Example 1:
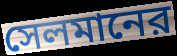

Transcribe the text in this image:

সেলমানের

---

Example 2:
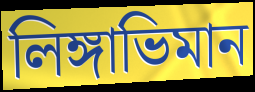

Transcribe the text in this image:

লিঙ্গাভিমান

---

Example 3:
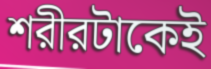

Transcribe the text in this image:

শরীরটাকেই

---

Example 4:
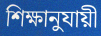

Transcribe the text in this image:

শিক্ষানুযায়ী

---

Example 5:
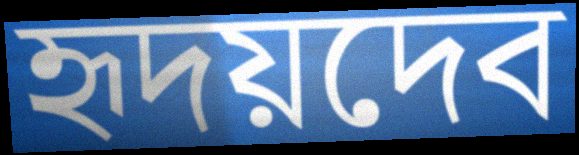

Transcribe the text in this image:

হৃদয়দেব